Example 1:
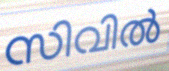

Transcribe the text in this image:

സിവിൽ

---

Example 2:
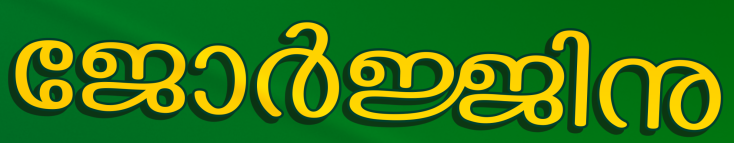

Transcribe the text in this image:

ജോർജ്ജിനു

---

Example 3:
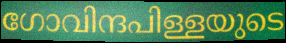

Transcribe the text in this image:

ഗോവിന്ദപിള്ളയുടെ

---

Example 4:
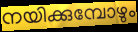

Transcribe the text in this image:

നയിക്കുമ്പോഴും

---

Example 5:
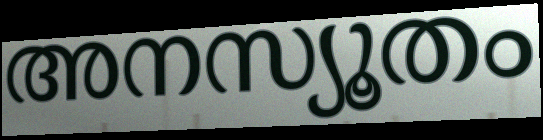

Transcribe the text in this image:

അനസ്യൂതം